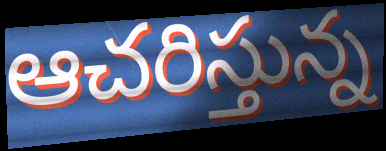
ఆచరిస్తున్న